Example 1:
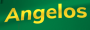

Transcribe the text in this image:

Angelos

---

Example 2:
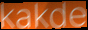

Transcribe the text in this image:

kakde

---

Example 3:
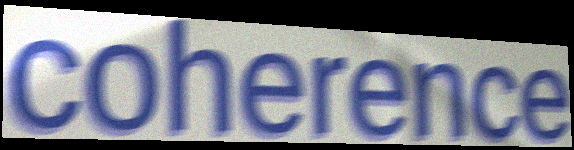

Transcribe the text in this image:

coherence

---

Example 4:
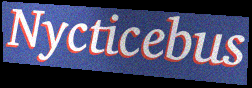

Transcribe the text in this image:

Nycticebus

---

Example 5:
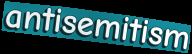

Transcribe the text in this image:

antisemitism